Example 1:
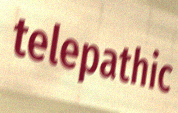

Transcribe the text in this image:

telepathic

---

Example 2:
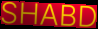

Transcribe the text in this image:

SHABD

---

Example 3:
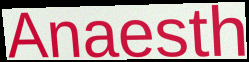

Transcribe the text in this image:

Anaesth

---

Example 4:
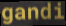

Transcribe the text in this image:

gandi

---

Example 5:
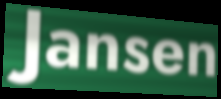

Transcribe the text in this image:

Jansen